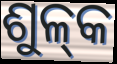
ଶୁଳ୍‌କ